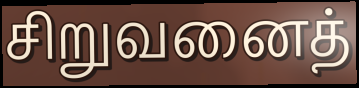
சிறுவனைத்